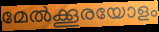
മേൽക്കൂരയോളം